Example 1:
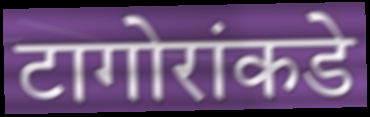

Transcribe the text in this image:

टागोरांकडे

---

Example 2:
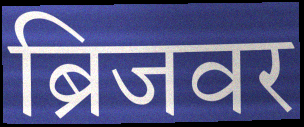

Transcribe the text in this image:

ब्रिजवर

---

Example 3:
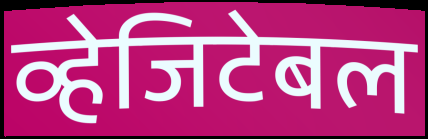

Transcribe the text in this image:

व्हेजिटेबल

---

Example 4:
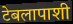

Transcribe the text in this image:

टेबलापाशी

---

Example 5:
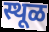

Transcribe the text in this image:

स्थूळ